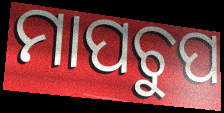
ମାପଚୁପ